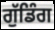
ਗੁੱਡਿੰਗ